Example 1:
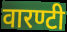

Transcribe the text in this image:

वारण्टी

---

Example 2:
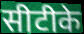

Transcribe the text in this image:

सीटीके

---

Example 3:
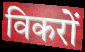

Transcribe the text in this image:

विकरों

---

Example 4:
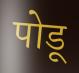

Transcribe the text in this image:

पोडू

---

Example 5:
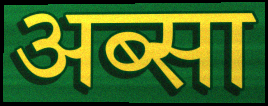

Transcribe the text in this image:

अब्सा